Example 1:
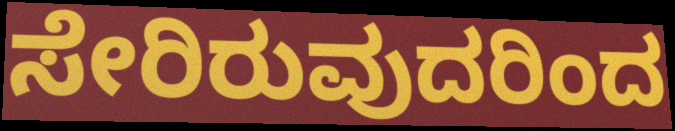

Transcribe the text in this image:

ಸೇರಿರುವುದರಿಂದ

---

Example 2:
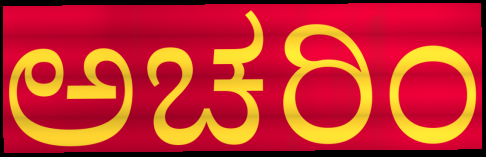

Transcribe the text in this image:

ಅಚರಿಂ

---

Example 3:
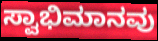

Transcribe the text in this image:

ಸ್ವಾಭಿಮಾನವು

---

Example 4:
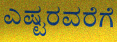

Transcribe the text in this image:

ಎಷ್ಟರವರೆಗೆ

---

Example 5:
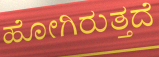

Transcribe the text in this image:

ಹೋಗಿರುತ್ತದೆ